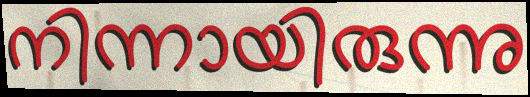
നിന്നായിരുന്നു